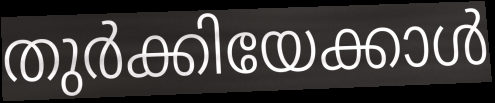
തുർക്കിയേക്കാൾ